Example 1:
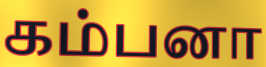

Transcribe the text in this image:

கம்பனா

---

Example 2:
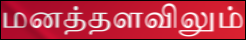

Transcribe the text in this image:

மனத்தளவிலும்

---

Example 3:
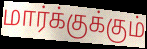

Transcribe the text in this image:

மார்க்குக்கும்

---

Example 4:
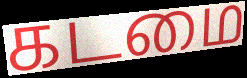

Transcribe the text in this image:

கடமை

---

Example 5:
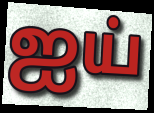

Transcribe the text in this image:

ஐய்